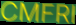
CMFRI